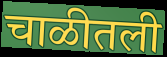
चाळीतली